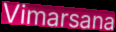
Vimarsana